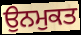
ਉਨਮੁਕਤ